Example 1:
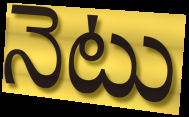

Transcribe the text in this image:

నెటు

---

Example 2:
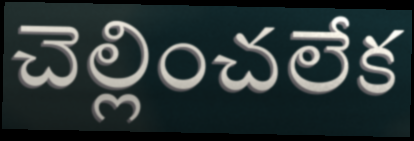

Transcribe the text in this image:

చెల్లించలేక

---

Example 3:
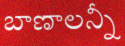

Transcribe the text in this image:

బాణాలన్నీ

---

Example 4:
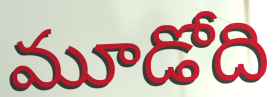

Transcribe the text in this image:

మూడోది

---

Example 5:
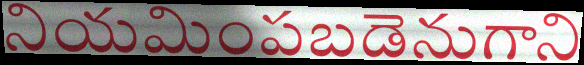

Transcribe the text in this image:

నియమింపబడెనుగాని